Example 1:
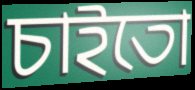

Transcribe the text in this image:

চাইতো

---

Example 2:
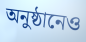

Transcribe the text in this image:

অনুষ্ঠানেও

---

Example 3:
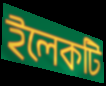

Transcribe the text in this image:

ইলেকটি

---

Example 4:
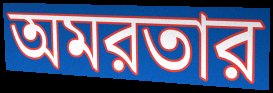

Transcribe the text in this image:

অমরতার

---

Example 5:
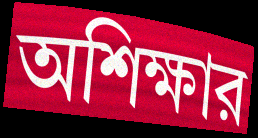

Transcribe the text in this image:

অশিক্ষার